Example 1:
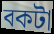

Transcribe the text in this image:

বকটা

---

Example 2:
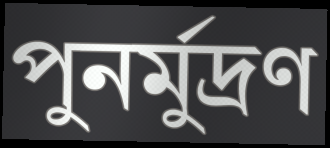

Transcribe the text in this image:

পুনর্মুদ্রণ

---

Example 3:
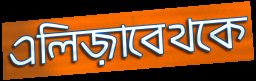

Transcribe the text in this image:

এলিজ়াবেথকে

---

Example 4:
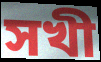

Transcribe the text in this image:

সখী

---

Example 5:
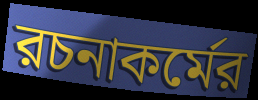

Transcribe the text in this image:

রচনাকর্মের